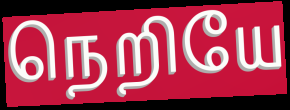
நெறியே